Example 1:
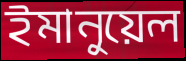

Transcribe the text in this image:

ইমানুয়েল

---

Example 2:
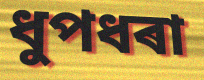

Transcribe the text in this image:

ধুপধৰা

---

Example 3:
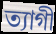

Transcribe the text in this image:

ত্যাগী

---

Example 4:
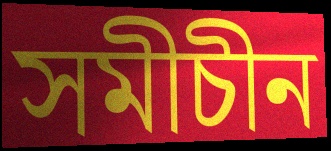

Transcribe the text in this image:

সমীচীন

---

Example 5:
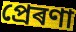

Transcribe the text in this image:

প্ৰেৰণা